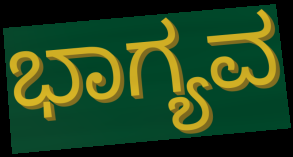
ಭಾಗ್ಯವ